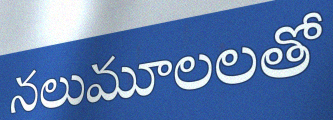
నలుమూలలతో